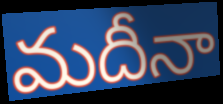
మదీనా